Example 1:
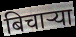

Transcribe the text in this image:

बिचाऱ्या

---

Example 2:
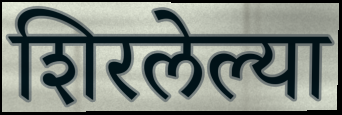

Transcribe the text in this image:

शिरलेल्या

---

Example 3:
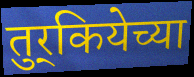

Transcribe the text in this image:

तुर्कियेच्या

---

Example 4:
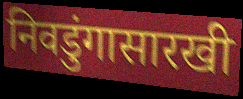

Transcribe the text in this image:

निवडुंगासारखी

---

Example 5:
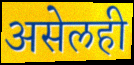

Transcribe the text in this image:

असेलही